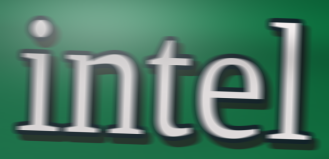
intel